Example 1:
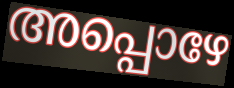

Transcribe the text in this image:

അപ്പൊഴേ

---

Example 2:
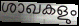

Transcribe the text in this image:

ശാഖകളും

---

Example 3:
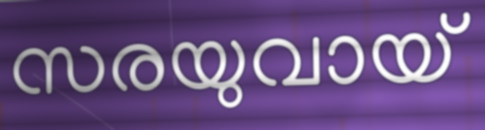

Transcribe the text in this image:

സരയുവായ്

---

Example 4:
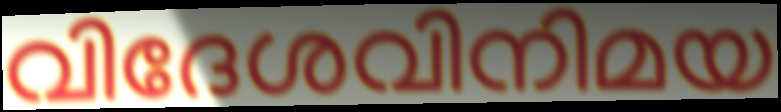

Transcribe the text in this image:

വിദേശവിനിമയ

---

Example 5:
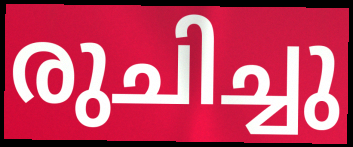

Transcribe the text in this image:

രുചിച്ചു